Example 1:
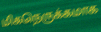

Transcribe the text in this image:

மிகநெருக்கமாக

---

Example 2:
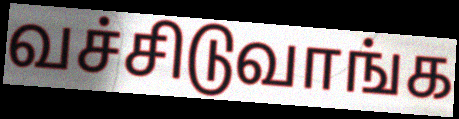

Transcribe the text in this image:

வச்சிடுவாங்க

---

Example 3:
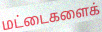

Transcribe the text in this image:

மட்டைகளைக்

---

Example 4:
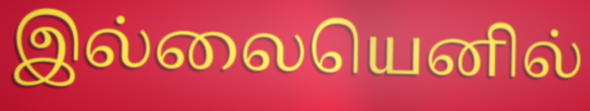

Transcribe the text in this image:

இல்லையெனில்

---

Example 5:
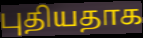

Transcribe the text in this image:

புதியதாக